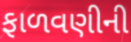
ફાળવણીની